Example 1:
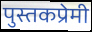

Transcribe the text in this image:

पुस्तकप्रेमी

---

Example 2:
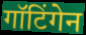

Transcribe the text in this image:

गॉटिंगेन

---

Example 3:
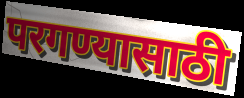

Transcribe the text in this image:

परगण्यासाठी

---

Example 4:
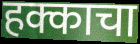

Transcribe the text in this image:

हक्काचा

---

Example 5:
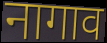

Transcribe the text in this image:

नागाव